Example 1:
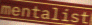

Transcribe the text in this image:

mentalist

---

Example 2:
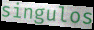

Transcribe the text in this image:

singulos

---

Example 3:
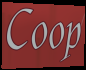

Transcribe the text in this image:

Coop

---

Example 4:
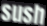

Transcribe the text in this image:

sush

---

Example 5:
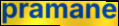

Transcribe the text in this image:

pramane